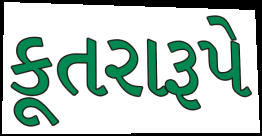
કૂતરારૂપે